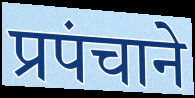
प्रपंचाने